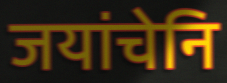
जयांचेनि